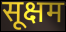
सूक्षम